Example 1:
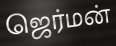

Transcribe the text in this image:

ஜெர்மன்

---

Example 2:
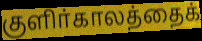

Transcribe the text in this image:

குளிர்காலத்தைக்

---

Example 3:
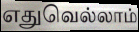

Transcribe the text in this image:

எதுவெல்லாம்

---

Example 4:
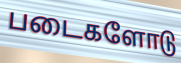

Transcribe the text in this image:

படைகளோடு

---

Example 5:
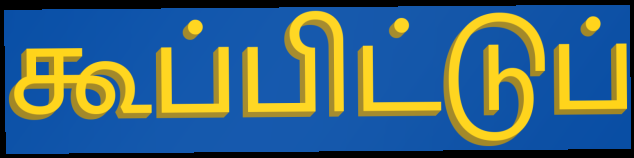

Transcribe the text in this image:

கூப்பிட்டுப்